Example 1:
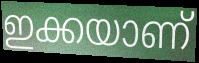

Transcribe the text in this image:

ഇക്കയാണ്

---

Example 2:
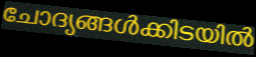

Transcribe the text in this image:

ചോദ്യങ്ങൾക്കിടയിൽ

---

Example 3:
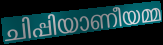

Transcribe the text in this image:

ചിപ്പിയാണീയമ്മ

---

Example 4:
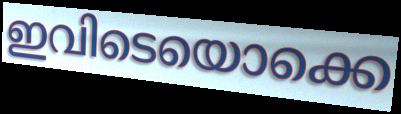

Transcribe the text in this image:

ഇവിടെയൊക്കെ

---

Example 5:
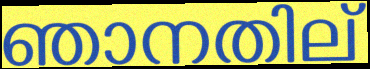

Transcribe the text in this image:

ഞാനതില്